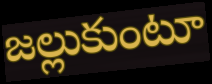
జల్లుకుంటూ